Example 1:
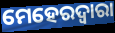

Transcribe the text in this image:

ମେହେରଦ୍ୱାରା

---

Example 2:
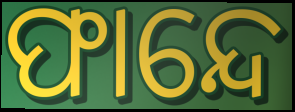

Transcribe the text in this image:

ଫାନ୍ଦେ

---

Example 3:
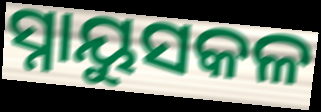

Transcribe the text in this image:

ସ୍ନାୟୁସକଳ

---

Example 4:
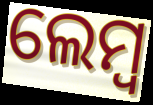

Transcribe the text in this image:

ଲେମ୍ବ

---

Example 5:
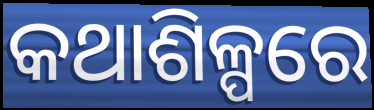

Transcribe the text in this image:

କଥାଶିଳ୍ପରେ